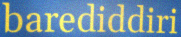
barediddiri